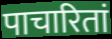
पाचारितां